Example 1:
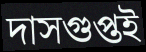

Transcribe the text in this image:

দাসগুপ্তই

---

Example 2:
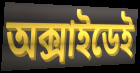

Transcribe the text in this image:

অক্সাইডেই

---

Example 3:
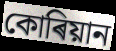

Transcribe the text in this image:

কোৰিয়ান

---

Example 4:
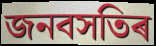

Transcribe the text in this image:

জনবসতিৰ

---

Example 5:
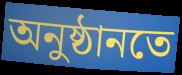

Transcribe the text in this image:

অনুষ্ঠানতে